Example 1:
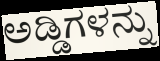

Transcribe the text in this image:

ಅಡ್ಡಿಗಳನ್ನು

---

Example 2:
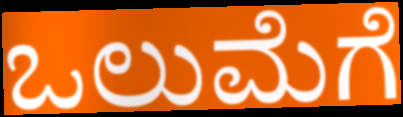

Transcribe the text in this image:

ಒಲುಮೆಗೆ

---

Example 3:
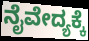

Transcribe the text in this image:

ನೈವೇದ್ಯಕ್ಕೆ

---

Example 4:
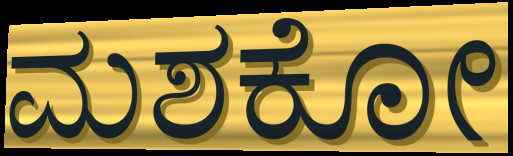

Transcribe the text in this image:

ಮಶಕೋ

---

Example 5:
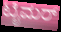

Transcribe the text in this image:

ಟೈಮರ್